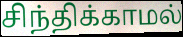
சிந்திக்காமல்